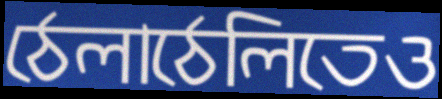
ঠেলাঠেলিতেও